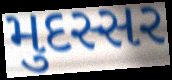
મુદસ્સર